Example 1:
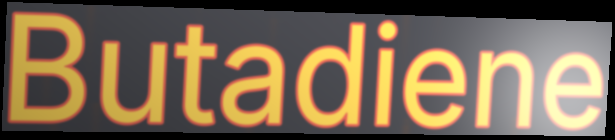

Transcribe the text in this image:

Butadiene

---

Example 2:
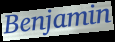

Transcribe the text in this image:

Benjamin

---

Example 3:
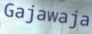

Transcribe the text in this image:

Gajawaja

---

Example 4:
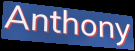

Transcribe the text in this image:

Anthony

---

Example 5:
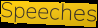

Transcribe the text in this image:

Speeches